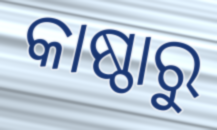
କାଷ୍ଠାରୁ